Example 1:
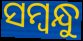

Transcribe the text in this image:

ସମ୍ବନ୍ଧୁ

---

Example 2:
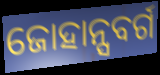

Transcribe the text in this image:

ଜୋହାନ୍ସବର୍ଗ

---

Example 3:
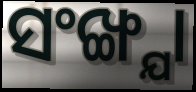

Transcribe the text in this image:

ସଂଙ୍ଖ୍ଯା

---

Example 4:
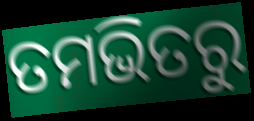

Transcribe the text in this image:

ତମଭିତରୁ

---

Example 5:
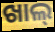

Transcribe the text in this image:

ଖାଲ୍